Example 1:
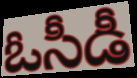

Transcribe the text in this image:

ఓసీడీ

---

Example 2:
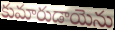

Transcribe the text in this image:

కుమారుడాయెను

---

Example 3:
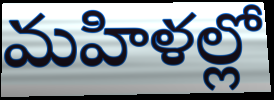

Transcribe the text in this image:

మహిళల్లో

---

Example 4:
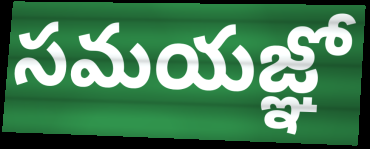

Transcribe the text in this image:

సమయజ్ఞో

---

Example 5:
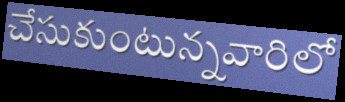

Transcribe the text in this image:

చేసుకుంటున్నవారిలో